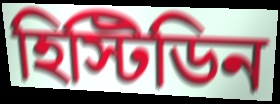
হিস্টিডিন